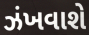
ઝંખવાશે